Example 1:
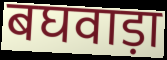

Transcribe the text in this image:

बघवाड़ा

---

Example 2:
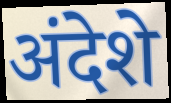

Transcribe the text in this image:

अंदेशे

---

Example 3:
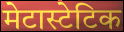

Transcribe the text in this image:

मेटास्टेटिक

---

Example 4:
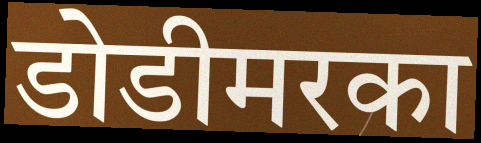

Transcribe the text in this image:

डोडीमरका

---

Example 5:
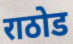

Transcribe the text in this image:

राठोड